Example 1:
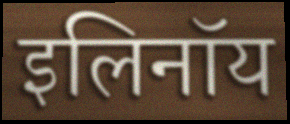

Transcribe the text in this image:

इलिनॉय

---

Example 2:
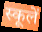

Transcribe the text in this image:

स्कूलें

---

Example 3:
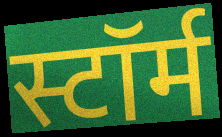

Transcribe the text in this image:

स्टॉर्म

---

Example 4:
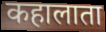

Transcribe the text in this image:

कहालाता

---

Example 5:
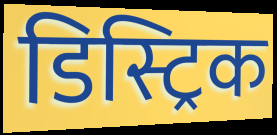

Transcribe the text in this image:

डिस्ट्रिक